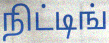
நிட்டிங்